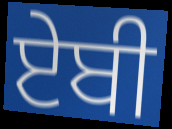
ਏਬੀ